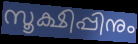
സൂക്ഷിപ്പിനും